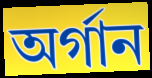
অর্গান